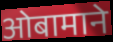
ओबामाने